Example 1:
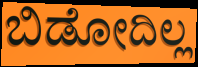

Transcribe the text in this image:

ಬಿಡೋದಿಲ್ಲ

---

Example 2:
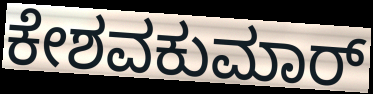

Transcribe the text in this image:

ಕೇಶವಕುಮಾರ್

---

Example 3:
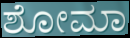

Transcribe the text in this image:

ಶೋಮಾ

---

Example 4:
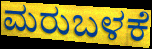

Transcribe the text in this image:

ಮರುಬಳಕೆ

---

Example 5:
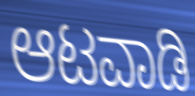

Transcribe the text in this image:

ಆಟವಾಡಿ